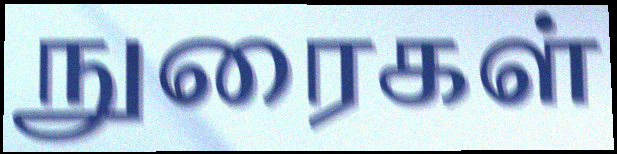
நுரைகள்